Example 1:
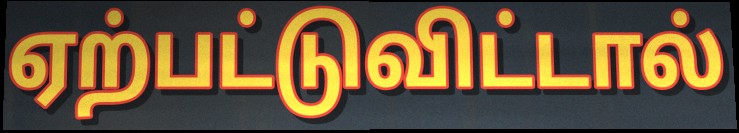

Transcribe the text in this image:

ஏற்பட்டுவிட்டால்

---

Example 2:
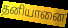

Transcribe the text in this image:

தனியானை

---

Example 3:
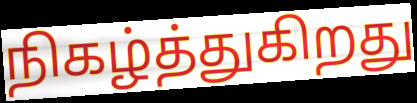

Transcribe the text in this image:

நிகழ்த்துகிறது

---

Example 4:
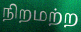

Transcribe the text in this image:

நிறமற்ற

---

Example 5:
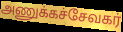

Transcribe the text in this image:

அணுக்கச்சேவகர்